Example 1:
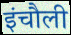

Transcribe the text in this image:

इंचौली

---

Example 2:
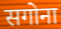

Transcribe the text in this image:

सगोना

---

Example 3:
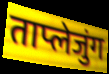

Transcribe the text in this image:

ताप्लेजुंग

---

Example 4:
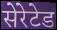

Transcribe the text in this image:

सेरेटेड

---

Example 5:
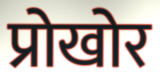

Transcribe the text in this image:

प्रोखोर